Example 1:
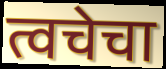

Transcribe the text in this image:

त्वचेचा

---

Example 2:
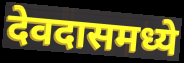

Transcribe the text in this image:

देवदासमध्ये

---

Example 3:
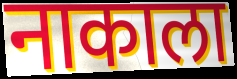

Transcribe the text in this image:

नाकाला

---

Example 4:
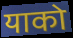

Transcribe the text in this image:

याको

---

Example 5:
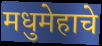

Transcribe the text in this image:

मधुमेहाचे